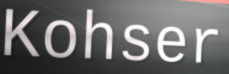
Kohser